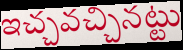
ఇచ్చవచ్చినట్టు